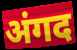
अंगद